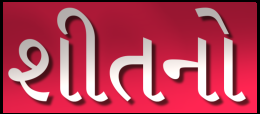
શીતનો